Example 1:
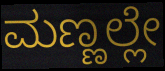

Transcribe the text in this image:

ಮಣ್ಣಲ್ಲೇ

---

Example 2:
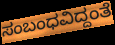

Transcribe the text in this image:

ಸಂಬಂಧವಿದ್ದಂತೆ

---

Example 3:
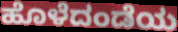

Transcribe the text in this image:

ಹೊಳೆದಂಡೆಯ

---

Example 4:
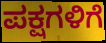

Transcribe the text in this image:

ಪಕ್ಷಗಳಿಗೆ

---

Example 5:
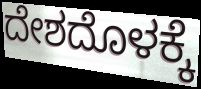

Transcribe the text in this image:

ದೇಶದೊಳಕ್ಕೆ